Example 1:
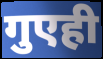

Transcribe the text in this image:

गुएही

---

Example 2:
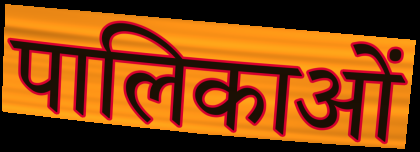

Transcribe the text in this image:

पालिकाओं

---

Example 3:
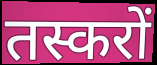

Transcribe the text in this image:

तस्करों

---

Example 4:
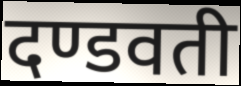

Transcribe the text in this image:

दण्डवती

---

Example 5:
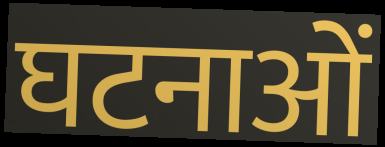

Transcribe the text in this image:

घटनाओं